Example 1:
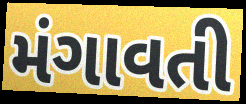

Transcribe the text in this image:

મંગાવતી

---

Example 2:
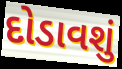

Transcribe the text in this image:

દોડાવશું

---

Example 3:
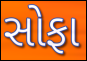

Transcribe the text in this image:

સોફા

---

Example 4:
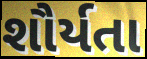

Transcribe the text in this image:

શૌર્યતા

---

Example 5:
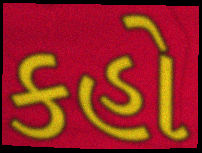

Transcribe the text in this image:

કહો